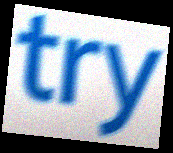
try